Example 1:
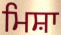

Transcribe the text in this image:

ਮਿਸ਼ਾ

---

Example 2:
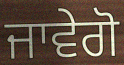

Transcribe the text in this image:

ਜਾਵੇਗੋ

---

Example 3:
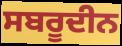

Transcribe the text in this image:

ਸਬਰੂਦੀਨ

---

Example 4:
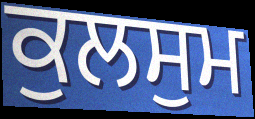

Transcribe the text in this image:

ਕੁਲਸੁਮ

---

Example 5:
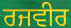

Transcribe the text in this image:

ਰਜਵੀਰ